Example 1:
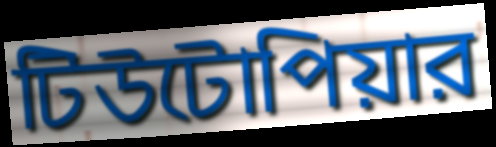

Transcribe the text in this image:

টিউটোপিয়ার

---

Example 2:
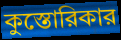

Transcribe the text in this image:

কুস্তোরিকার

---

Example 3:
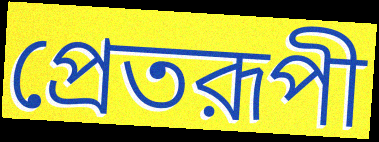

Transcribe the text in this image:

প্রেতরূপী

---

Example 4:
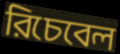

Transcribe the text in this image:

রিচেবেল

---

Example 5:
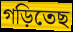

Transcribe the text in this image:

গড়িতেছ